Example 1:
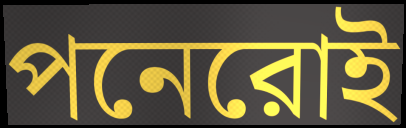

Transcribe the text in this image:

পনেরোই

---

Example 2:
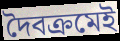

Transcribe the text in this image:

দৈবক্রমেই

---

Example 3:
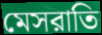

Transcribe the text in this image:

মেসরাতি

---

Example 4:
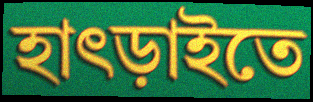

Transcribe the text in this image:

হাৎড়াইতে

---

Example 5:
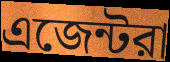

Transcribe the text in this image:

এজেন্টরা